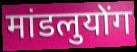
मांडलुयोंग